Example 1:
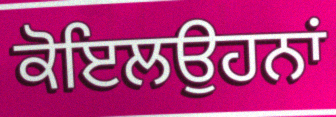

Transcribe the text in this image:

ਕੋਇਲਉਹਨਾਂ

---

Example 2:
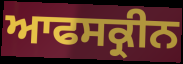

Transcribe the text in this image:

ਆਫਸਕ੍ਰੀਨ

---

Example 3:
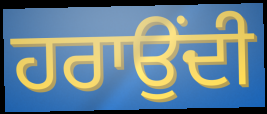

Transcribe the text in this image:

ਹਰਾਉਂਦੀ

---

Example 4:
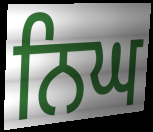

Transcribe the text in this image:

ਨਿਘ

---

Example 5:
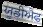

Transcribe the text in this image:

ਯੂਡੀਐਫ